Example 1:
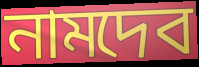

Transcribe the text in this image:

নামদেব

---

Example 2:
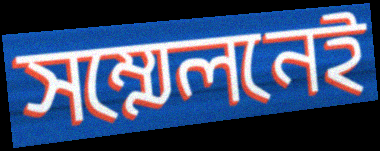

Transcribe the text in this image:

সম্মেলনেই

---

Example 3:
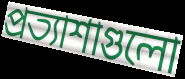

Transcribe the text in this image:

প্রত্যাশাগুলো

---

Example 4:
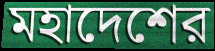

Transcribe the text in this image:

মহাদেশের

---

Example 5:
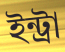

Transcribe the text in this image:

ইন্ট্রা